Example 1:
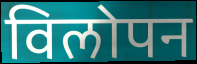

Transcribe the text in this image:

विलोपन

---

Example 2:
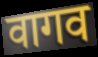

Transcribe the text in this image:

वागव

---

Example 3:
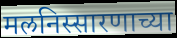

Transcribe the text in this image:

मलनिस्सारणाच्या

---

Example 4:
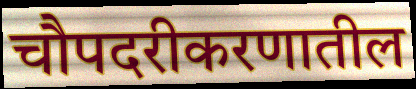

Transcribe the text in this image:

चौपदरीकरणातील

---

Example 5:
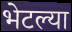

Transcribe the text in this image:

भेटल्या